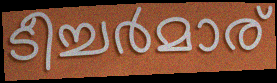
ടീച്ചർമാര്